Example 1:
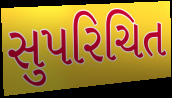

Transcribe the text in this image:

સુપરિચિત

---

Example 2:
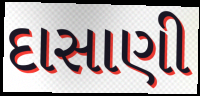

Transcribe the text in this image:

દાસાણી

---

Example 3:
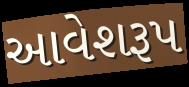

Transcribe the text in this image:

આવેશરૂપ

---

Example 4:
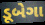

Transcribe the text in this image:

ડૂબેગા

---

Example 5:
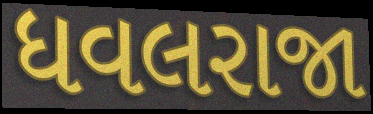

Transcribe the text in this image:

ધવલરાજા